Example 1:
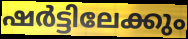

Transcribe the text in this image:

ഷർട്ടിലേക്കും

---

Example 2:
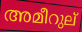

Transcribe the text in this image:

അമീറുല്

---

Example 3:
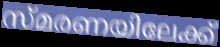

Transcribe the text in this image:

സ്മരണയിലേക്ക്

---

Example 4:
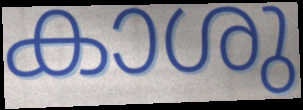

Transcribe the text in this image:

കാശു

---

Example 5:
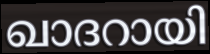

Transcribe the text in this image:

ഖാദറായി